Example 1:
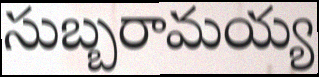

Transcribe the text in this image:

సుబ్బరామయ్య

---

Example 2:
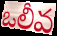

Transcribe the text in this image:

ఒలీవ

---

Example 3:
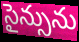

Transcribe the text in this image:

సైన్సును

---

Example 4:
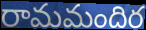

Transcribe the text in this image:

రామమందిర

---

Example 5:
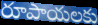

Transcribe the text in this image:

రూపాయలకు